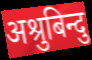
अश्रुबिन्दु